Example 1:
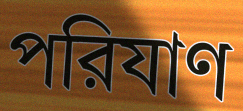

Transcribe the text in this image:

পরিযাণ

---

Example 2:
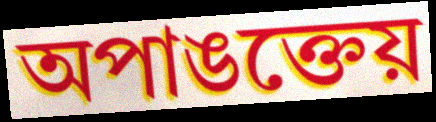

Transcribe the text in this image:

অপাঙক্তেয়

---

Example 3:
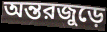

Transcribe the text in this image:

অন্তরজুড়ে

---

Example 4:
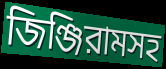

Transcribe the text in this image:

জিঞ্জিরামসহ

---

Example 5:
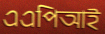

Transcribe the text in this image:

এএপিআই